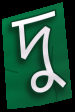
দু